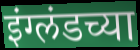
इंग्लंडच्या